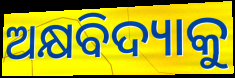
ଅକ୍ଷବିଦ୍ୟାକୁ